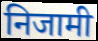
निजामी